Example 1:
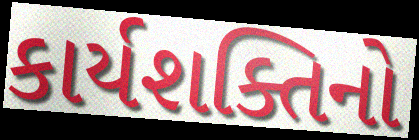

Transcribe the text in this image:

કાર્યશક્તિનો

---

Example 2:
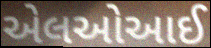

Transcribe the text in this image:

એલઓઆઈ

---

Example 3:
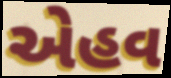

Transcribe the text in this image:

એહવ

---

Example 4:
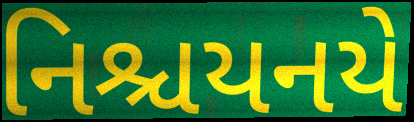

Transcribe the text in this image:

નિશ્ચયનયે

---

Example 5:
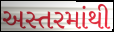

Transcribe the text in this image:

અસ્તરમાંથી